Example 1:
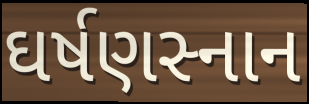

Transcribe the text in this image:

ઘર્ષણસ્નાન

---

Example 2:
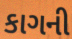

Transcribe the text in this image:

કાગની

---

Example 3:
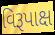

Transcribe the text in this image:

વિરૂપાક્ષ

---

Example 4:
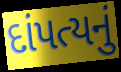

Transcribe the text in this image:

દાંપત્યનું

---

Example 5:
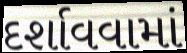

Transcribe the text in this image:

દર્શાવવામાં